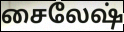
சைலேஷ்